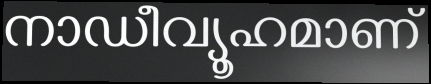
നാഡീവ്യൂഹമാണ്